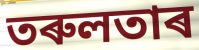
তৰুলতাৰ